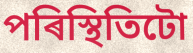
পৰিস্থিতিটো